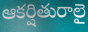
ఆకర్షితురాలై